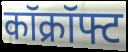
कॉक्रॉफ्ट